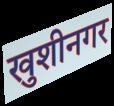
खुशीनगर